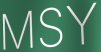
MSY